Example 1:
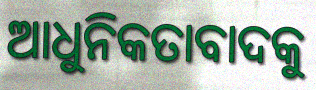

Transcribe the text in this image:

ଆଧୁନିକତାବାଦକୁ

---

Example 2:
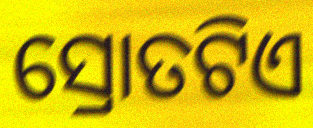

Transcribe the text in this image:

ସ୍ରୋତଟିଏ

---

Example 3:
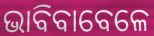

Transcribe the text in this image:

ଭାବିବାବେଳେ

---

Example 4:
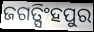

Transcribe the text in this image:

ଜଗତ୍ସିଂହପୁର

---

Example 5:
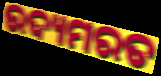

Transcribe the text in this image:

ଉଦ୍ୟମରତ